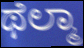
ಥೆಲ್ಮಾ